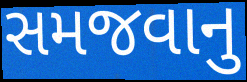
સમજવાનુ